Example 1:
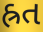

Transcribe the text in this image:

હ્રત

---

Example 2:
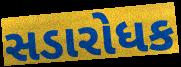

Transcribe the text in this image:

સડારોધક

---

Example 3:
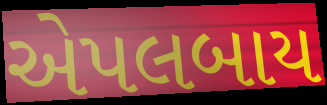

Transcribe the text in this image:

એપલબાય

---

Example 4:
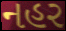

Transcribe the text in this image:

નહર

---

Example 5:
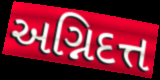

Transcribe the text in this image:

અગ્નિદત્ત